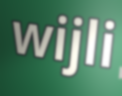
wijli